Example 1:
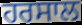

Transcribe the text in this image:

ਹਰਸਾਲ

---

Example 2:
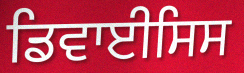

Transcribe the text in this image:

ਡਿਵਾਈਸਿਸ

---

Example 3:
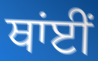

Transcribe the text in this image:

ਥਾਂਈਂ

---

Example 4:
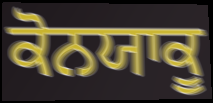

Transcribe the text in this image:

ਕੋਨਯਾਕੂ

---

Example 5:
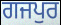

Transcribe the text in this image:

ਗਜਪੁਰ